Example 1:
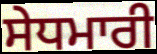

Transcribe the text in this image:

ਸੇਧਮਾਰੀ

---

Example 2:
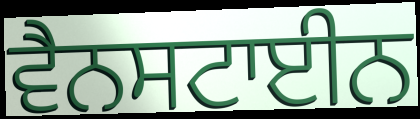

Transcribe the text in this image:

ਵੈਨਸਟਾਈਨ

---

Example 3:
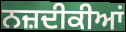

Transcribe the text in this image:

ਨਜ਼ਦੀਕੀਆਂ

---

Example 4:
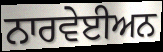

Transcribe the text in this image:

ਨਾਰਵੇਈਅਨ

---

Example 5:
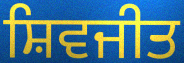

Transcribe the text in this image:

ਸ਼ਿਵਜੀਤ